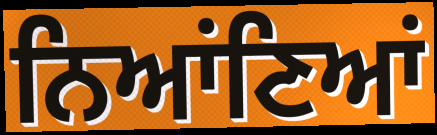
ਨਿਆਂਣਿਆਂ